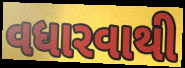
વધારવાથી